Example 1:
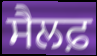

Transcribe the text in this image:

ਸੈਲਫ਼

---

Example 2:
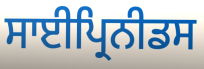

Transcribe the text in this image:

ਸਾਈਪ੍ਰਿਨੀਡਸ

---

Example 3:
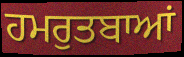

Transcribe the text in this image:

ਹਮਰੁਤਬਾਆਂ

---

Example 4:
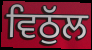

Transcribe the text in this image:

ਵਿਠੁੱਲ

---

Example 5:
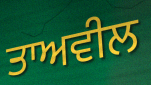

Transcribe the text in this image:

ਤਾਅਵੀਲ